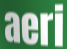
aeri